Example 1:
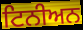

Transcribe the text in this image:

ਟਿਨੀਅਨ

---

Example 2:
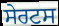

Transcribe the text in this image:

ਸੇਰਟਸ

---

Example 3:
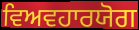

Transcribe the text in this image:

ਵਿਅਵਹਾਰਯੋਗ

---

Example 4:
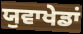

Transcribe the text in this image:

ਯੁਵਾਖੇਡਾਂ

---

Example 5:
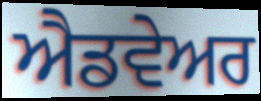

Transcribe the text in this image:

ਐਡਵੇਅਰ